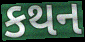
કથન